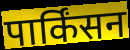
पार्किंसन